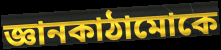
জ্ঞানকাঠামোকে